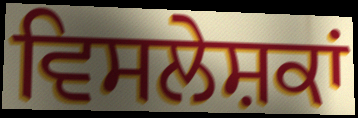
ਵਿਸਲੇਸ਼ਕਾਂ